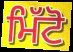
ਮਿੱਟੋ